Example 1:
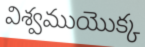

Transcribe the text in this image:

విశ్వముయొక్క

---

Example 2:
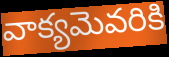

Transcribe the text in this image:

వాక్యమెవరికి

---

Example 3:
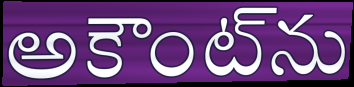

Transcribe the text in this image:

అకౌంట్‌ను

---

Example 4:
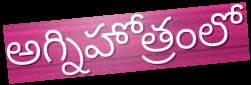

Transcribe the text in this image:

అగ్నిహోత్రంలో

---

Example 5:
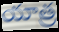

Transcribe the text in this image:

యాత్ర